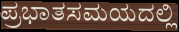
ಪ್ರಭಾತಸಮಯದಲ್ಲಿ